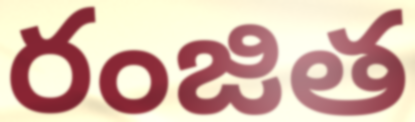
రంజిత